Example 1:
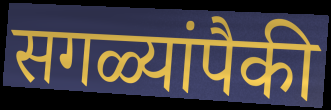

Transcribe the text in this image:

सगळ्यांपैकी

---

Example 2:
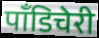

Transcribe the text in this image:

पॉंडिचेरी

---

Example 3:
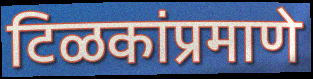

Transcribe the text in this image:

टिळकांप्रमाणे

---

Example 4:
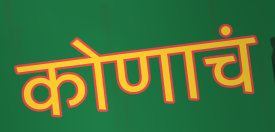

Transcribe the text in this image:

कोणाचं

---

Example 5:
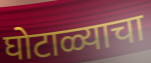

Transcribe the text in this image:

घोटाळ्याचा